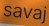
savaj